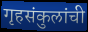
गृहसंकुलांची